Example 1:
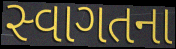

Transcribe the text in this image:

સ્વાગતના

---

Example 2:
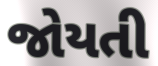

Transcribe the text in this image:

જોયતી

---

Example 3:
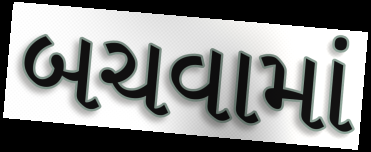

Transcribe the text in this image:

બચવામાં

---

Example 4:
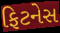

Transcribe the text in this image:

ફિટનેસ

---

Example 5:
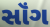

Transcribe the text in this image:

સૉંગ